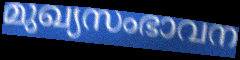
മുഖ്യസംഭാവന